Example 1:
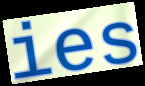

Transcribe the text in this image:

ies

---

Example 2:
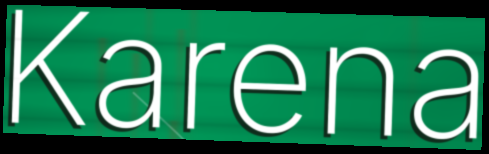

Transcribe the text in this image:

Karena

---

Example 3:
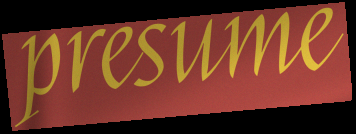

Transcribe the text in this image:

presume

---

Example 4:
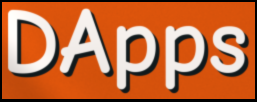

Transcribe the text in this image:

DApps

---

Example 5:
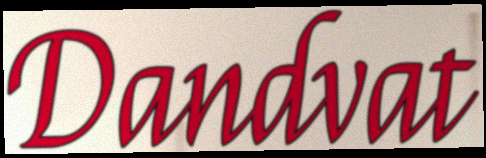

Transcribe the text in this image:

Dandvat